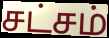
சட்சம்